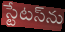
స్టేటస్‌ను